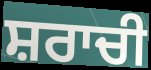
ਸ਼ਰਾਚੀ